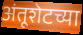
अंतूशेटच्या